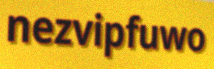
nezvipfuwo